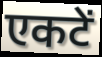
एकटें